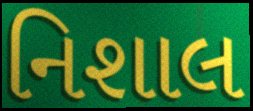
નિશાલ